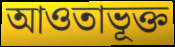
আওতাভূক্ত